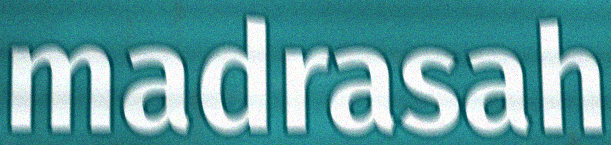
madrasah